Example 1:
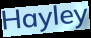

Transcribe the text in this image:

Hayley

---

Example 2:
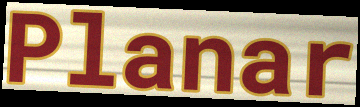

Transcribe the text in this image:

Planar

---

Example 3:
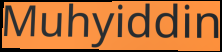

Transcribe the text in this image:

Muhyiddin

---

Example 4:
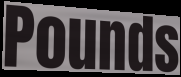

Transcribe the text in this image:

Pounds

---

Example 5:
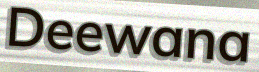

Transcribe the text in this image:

Deewana